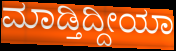
ಮಾಡ್ತಿದ್ದೀಯಾ